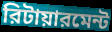
রিটায়ারমেন্ট